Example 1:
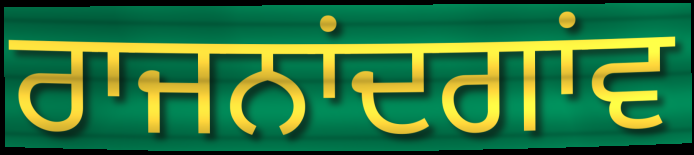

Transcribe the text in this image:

ਰਾਜਨਾਂਦਗਾਂਵ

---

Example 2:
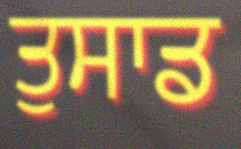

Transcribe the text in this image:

ਤੁਸਾਡ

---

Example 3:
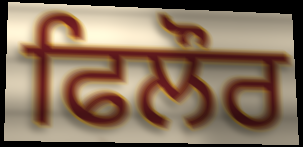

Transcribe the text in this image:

ਫਿਲੌਰ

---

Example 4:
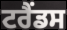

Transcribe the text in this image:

ਟਰੈਂਡਸ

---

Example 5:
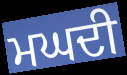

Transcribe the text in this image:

ਮਘਦੀ